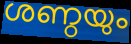
ശണ്ഠയും